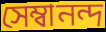
সেম্বানন্দ